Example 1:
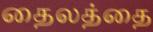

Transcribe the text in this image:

தைலத்தை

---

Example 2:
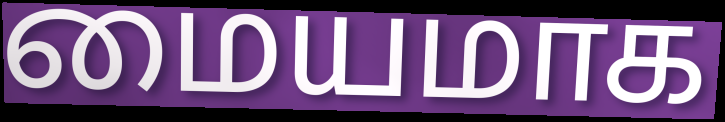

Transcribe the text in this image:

மையமாக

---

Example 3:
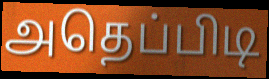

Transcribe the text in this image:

அதெப்பிடி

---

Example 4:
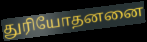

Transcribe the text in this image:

துரியோதனனை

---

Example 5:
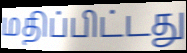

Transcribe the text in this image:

மதிப்பிட்டது